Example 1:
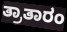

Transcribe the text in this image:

ತ್ರಾತಾರಂ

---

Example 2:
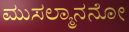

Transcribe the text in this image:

ಮುಸಲ್ಮಾನನೋ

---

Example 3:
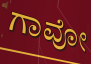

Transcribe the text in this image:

ಗಾವೋ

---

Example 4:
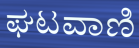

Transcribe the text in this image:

ಘಟವಾಣಿ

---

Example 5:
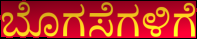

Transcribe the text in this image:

ಬೊಗಸೆಗಳಿಗೆ